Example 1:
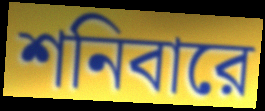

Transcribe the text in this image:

শনিবারে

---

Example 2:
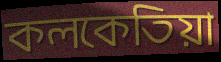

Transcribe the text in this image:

কলকেতিয়া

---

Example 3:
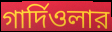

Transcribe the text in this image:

গার্দিওলার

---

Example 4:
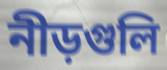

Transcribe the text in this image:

নীড়গুলি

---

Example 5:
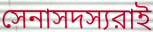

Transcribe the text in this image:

সেনাসদস্যরাই